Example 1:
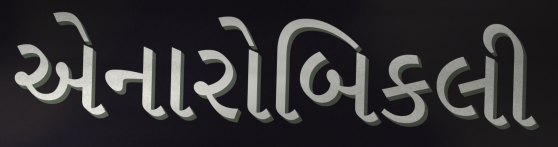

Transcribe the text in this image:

એનારોબિકલી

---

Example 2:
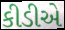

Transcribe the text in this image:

કીડીએ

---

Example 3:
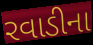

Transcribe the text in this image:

રવાડીના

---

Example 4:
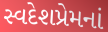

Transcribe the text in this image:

સ્વદેશપ્રેમનાં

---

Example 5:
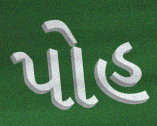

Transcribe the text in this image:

પોહ